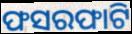
ଫସରଫାଟି